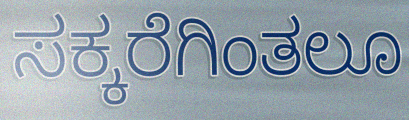
ಸಕ್ಕರೆಗಿಂತಲೂ